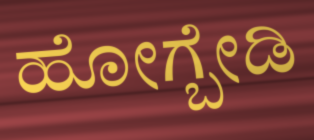
ಹೋಗ್ಬೇಡಿ